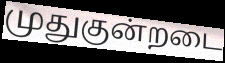
முதுகுன்றடை